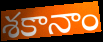
శకానాం